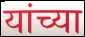
यांच्‍या